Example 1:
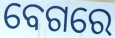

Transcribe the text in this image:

ବେଗରେ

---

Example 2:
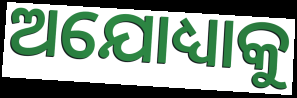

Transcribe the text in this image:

ଅଯୋଧ୍ୟାକୁ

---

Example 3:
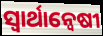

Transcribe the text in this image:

ସ୍ବାର୍ଥାନ୍ବେଷୀ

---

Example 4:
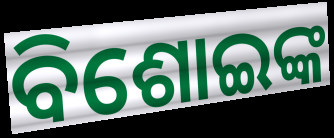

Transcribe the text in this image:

ବିଶୋଇଙ୍କ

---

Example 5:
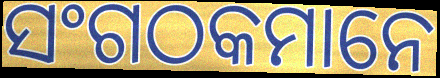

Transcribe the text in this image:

ସଂଗଠକମାନେ